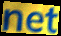
net